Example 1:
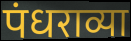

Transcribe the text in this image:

पंधराव्या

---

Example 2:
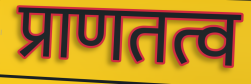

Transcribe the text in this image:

प्राणतत्व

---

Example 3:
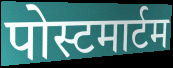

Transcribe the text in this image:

पोस्टमार्टम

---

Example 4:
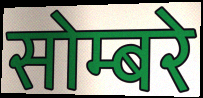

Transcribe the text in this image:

सोम्बरे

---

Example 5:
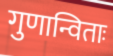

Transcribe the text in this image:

गुणान्विताः